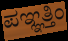
ಪಞ್ಞತ್ತಿಂ